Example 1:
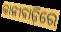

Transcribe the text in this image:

କାଳୀବାଡ଼ିରେ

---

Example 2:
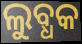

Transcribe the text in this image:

ଲୁବ୍ଧକ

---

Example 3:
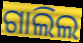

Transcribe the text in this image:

ଗାଲିଲ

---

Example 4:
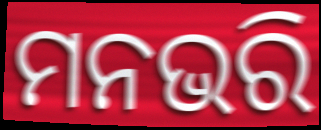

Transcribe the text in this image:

ମନଭରି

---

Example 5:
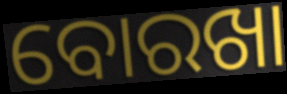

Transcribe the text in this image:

ବୋରଖା